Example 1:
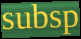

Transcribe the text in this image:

subsp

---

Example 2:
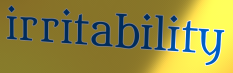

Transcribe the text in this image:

irritability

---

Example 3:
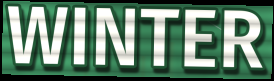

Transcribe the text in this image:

WINTER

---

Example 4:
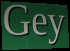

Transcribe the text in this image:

Gey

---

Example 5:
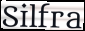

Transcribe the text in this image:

Silfra